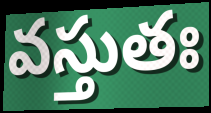
వస్తుతః